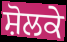
ਸ਼ੋਲਕੇ